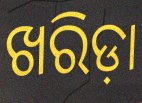
ଖରିଡ଼ା